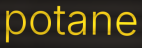
potane